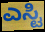
ಎಸ್ಟಿ